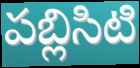
పబ్లిసిటి